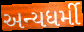
અન્યધર્મી